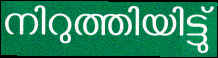
നിറുത്തിയിട്ടു്